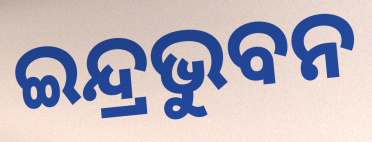
ଇନ୍ଦ୍ରଭୁବନ